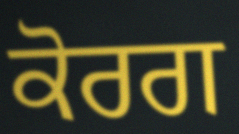
ਕੋਰਗ